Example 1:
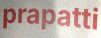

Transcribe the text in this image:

prapatti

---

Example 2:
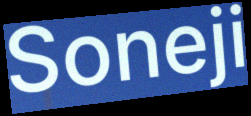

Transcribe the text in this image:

Soneji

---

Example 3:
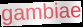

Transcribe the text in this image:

gambiae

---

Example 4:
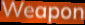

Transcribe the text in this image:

Weapon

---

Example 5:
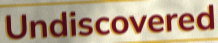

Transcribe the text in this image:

Undiscovered